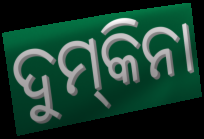
ଦୁମ୍‌କିନା